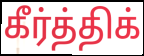
கீர்த்திக்